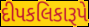
દીપકલિકારૂપે